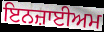
ਇਨਜ਼ਾਈਅਮ